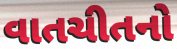
વાતચીતનો